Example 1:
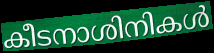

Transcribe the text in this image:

കീടനാശിനികൾ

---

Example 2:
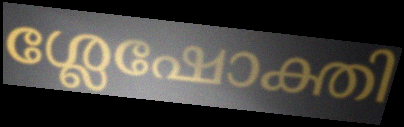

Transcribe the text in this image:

ശ്ലേഷോക്തി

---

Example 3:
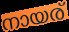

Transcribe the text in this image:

നായര്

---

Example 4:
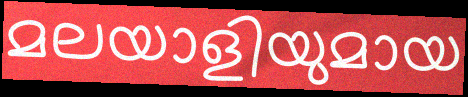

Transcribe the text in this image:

മലയാളിയുമായ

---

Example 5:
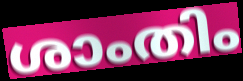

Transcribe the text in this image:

ശാംതിം